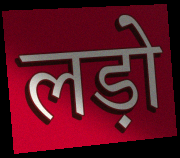
लड़ो